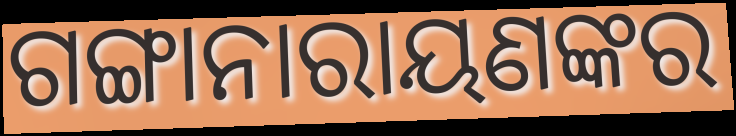
ଗଙ୍ଗାନାରାୟଣଙ୍କର